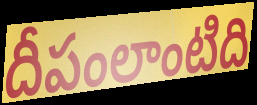
దీపంలాంటిది